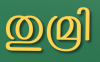
തുമ്രി